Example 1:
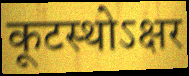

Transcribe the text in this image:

कूटस्थोऽक्षर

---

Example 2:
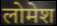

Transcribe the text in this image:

लोमेश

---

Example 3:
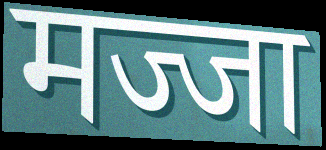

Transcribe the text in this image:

मज्जा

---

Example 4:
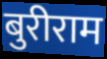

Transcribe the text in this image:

बुरीराम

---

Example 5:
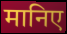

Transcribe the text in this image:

मानिए